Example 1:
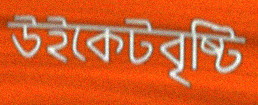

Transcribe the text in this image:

উইকেটবৃষ্টি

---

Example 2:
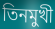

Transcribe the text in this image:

তিনমুখী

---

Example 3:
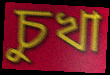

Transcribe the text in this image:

চুখা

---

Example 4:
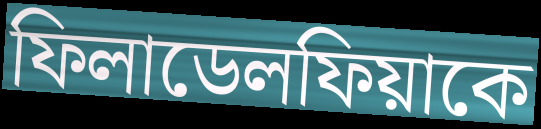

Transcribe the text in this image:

ফিলাডেলফিয়াকে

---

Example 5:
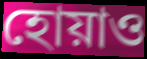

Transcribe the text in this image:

হোয়াও